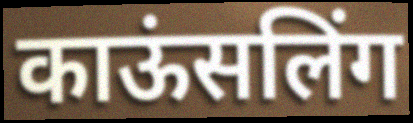
काऊंसलिंग